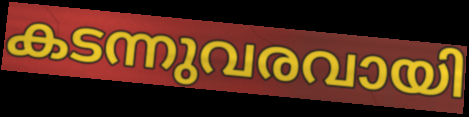
കടന്നുവരവായി